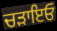
ਚੜਾਇਓ